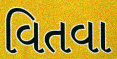
વિતવા